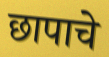
छापाचे